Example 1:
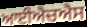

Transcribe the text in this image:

ਆਈਐਚਐਸ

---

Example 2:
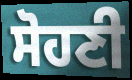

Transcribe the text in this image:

ਸੋਹਣੀ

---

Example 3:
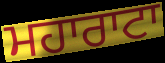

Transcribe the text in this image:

ਮਹਾਰਾਟਾ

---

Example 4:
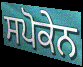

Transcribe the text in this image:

ਸਪੋਕੇਨ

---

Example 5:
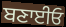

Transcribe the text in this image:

ਬਣਾਈਓ